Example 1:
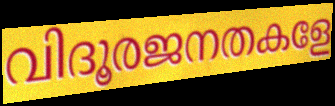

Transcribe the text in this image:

വിദൂരജനതകളേ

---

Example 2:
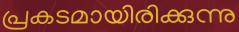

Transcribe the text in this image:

പ്രകടമായിരിക്കുന്നു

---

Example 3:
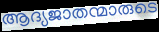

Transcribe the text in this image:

ആദ്യജാതന്മാരുടെ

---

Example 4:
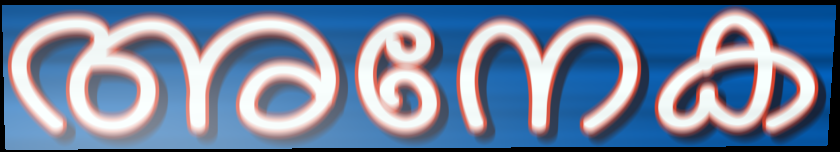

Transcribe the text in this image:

അനേക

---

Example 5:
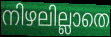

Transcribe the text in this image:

നിഴലില്ലാതെ